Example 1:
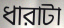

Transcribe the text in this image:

ধারাটা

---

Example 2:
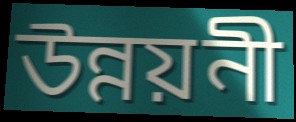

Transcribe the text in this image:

উন্নয়নী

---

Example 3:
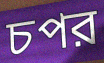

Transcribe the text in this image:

চপর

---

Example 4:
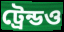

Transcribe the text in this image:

ট্রেন্ডও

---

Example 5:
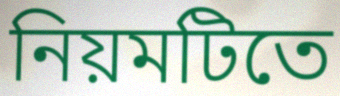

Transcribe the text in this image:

নিয়মটিতে